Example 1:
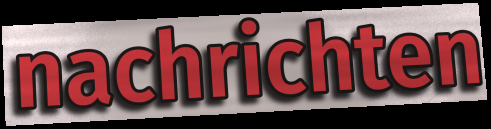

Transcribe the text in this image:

nachrichten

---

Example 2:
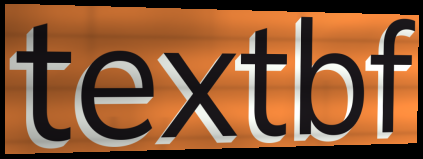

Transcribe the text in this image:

textbf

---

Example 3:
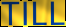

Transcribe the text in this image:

TILL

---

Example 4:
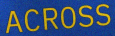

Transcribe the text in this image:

ACROSS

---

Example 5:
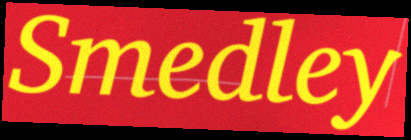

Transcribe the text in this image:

Smedley